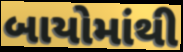
બાયોમાંથી